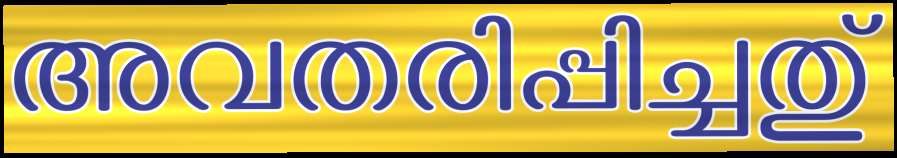
അവതരിപ്പിച്ചതു്